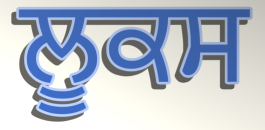
ਲੂਕਸ